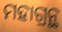
ମହାଗ୍ରନ୍ଥ